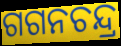
ଗଗନଚନ୍ଦ୍ର